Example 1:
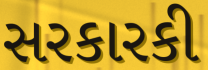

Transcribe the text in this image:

સરકારકી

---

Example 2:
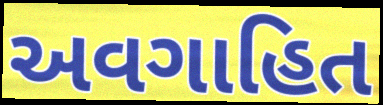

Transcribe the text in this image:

અવગાહિત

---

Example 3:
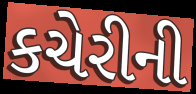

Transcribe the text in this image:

કચેરીની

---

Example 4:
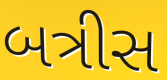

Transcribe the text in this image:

બત્રીસ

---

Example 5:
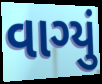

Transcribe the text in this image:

વાગ્યું